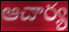
ఆచార్య